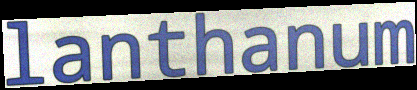
lanthanum